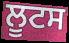
ਲੂਟਸ